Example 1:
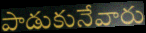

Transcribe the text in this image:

పాడుకునేవారు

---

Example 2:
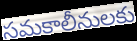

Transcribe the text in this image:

సమకాలీనులకు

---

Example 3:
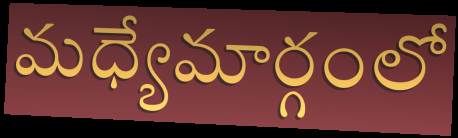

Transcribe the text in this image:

మధ్యేమార్గంలో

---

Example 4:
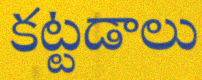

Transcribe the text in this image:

కట్టడాలు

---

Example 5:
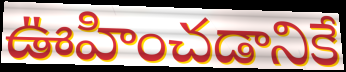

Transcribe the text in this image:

ఊహించడానికే